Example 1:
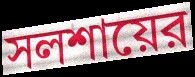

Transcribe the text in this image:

সলশায়ের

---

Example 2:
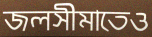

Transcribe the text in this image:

জলসীমাতেও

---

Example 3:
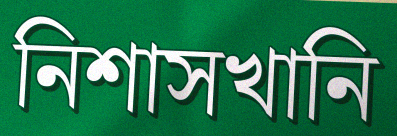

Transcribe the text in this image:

নিশাসখানি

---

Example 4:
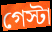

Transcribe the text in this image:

গেস্টা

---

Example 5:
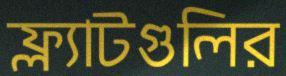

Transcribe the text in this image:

ফ্ল্যাটগুলির